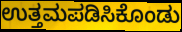
ಉತ್ತಮಪಡಿಸಿಕೊಂಡು